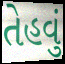
તેહવું